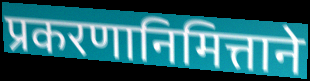
प्रकरणानिमित्ताने